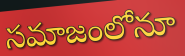
సమాజంలోనూ